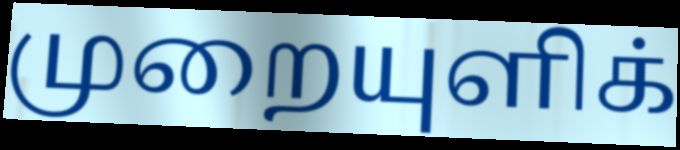
முறையுளிக்